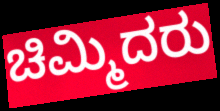
ಚಿಮ್ಮಿದರು